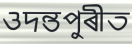
ওদন্তপুৰীত